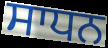
ਸਾਧਨ